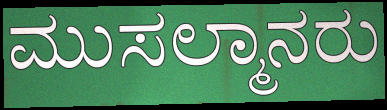
ಮುಸಲ್ಮಾನರು